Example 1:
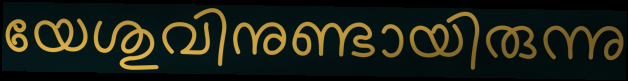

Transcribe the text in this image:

യേശുവിനുണ്ടായിരുന്നു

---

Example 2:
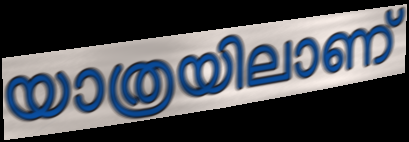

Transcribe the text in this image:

യാത്രയിലാണ്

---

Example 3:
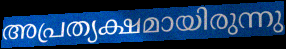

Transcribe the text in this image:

അപ്രത്യക്ഷമായിരുന്നു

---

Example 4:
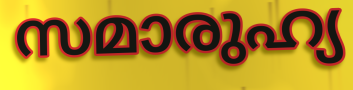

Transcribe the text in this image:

സമാരുഹ്യ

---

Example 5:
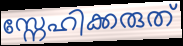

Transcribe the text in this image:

സ്നേഹിക്കരുത്